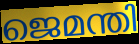
ജെമന്തി